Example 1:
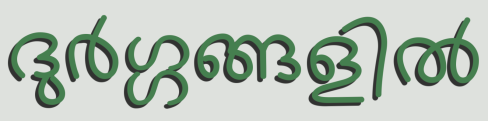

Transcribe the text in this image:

ദുർഗ്ഗങ്ങളിൽ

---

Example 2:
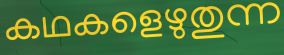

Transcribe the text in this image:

കഥകളെഴുതുന്ന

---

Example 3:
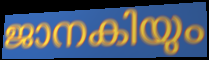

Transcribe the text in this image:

ജാനകിയും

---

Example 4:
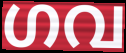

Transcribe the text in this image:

ഗവ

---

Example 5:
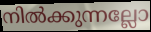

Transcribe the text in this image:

നിൽക്കുന്നല്ലോ